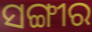
ସଙ୍ଗୀର